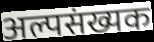
अल्‍पसंख्‍यक